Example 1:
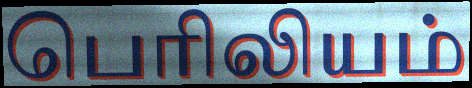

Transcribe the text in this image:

பெரிலியம்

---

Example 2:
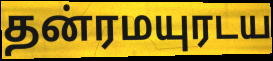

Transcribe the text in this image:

தன்ரமயுரடய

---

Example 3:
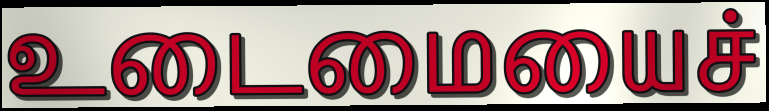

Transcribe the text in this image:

உடைமையைச்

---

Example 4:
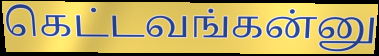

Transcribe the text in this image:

கெட்டவங்கன்னு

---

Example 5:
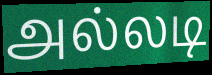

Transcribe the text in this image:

அல்லடி